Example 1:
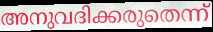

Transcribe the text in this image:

അനുവദിക്കരുതെന്ന്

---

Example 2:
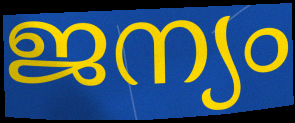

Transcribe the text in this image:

ജന്യം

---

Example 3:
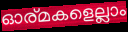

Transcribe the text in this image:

ഓര്മകളെല്ലാം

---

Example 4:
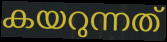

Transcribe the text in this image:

കയറുന്നത്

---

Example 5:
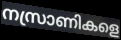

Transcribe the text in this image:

നസ്രാണികളെ